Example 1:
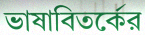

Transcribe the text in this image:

ভাষাবিতর্কের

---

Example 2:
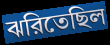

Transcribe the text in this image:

ঝরিতেছিল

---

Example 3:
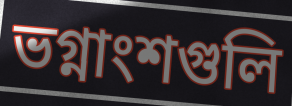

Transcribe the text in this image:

ভগ্নাংশগুলি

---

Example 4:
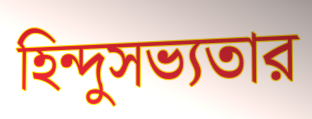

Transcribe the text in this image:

হিন্দুসভ্যতার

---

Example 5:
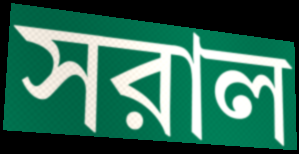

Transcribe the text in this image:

সরাল